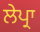
ਲੇਪ੍ਰਾ